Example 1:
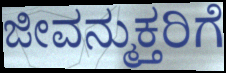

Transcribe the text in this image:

ಜೀವನ್ಮುಕ್ತರಿಗೆ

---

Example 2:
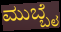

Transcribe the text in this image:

ಮುಬ್ಬೈ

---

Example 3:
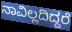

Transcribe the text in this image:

ನಾವಿಲ್ಲದಿದ್ದರೆ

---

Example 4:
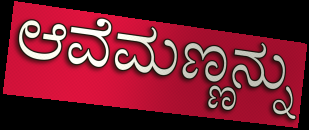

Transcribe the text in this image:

ಆವೆಮಣ್ಣನ್ನು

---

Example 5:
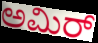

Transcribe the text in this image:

ಅಮಿರ್